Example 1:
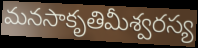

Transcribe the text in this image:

మనసాకృతిమీశ్వరస్య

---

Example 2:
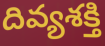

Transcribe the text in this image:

దివ్యశక్తి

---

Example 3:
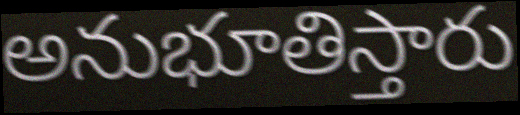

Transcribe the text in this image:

అనుభూతిస్తారు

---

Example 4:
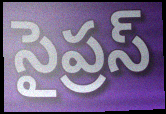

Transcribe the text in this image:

సైప్రస్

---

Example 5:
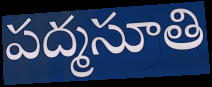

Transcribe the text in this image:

పద్మసూతి